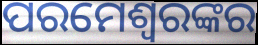
ପରମେଶ୍ୱରଙ୍କର